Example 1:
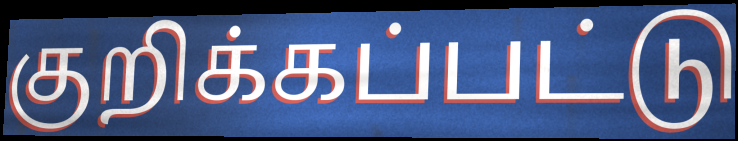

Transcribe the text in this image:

குறிக்கப்பட்டு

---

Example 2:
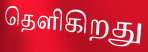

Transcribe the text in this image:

தெளிகிறது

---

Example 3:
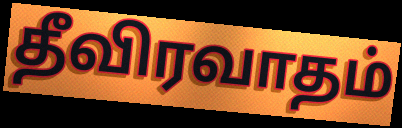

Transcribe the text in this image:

தீவிரவாதம்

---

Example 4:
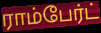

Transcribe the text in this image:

ராம்பேர்ட்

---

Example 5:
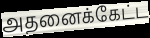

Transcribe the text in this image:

அதனைக்கேட்ட